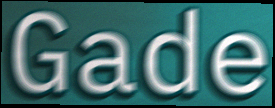
Gade